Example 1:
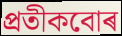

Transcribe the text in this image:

প্ৰতীকবোৰ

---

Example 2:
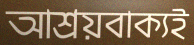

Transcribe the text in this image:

আশ্ৰয়বাক্যই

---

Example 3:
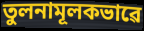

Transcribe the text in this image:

তুলনামূলকভাৱে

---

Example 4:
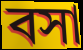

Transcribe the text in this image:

বসা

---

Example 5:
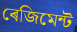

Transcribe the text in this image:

ৰেজিমেন্ট